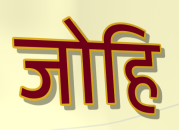
जोहि